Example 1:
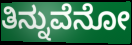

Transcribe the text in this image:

ತಿನ್ನುವೆನೋ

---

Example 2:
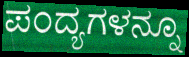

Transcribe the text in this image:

ಪಂದ್ಯಗಳನ್ನೂ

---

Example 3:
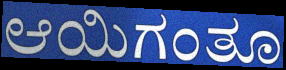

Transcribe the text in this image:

ಆಯಿಗಂತೂ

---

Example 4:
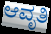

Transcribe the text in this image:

ಆವೃತಿ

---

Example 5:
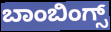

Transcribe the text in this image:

ಬಾಂಬಿಂಗ್ಸ್